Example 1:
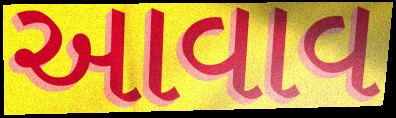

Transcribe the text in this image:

આવાવ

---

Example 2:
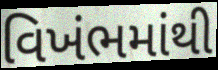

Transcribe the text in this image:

વિખંભમાંથી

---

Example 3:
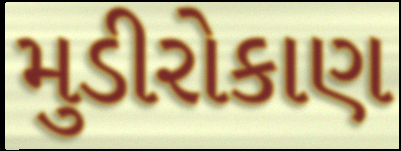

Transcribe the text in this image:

મુડીરોકાણ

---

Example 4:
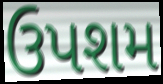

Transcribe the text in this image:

ઉપશમ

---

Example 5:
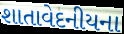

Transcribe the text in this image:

શાતાવેદનીયના